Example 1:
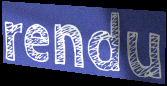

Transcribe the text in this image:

rendu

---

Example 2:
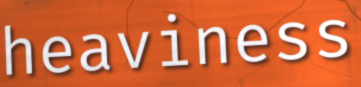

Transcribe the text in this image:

heaviness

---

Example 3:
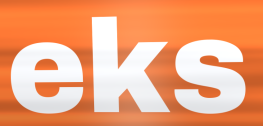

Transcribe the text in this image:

eks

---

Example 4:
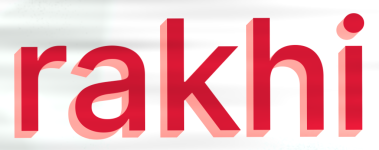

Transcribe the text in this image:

rakhi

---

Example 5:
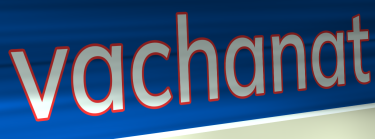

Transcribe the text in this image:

vachanat